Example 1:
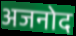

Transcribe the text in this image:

अजनोद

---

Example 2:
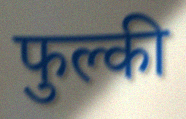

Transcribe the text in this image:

फुल्की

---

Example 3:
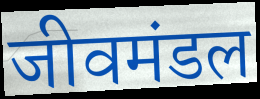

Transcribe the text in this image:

जीवमंडल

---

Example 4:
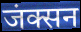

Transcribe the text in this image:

जंक्सन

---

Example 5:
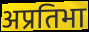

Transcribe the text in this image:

अप्रतिभा